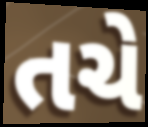
તચે